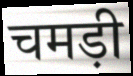
चमड़ी